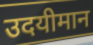
उदयीमान